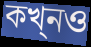
কখ্নও